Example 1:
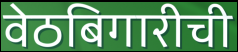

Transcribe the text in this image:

वेठबिगारीची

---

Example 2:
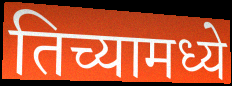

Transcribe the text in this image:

तिच्यामध्ये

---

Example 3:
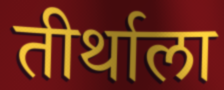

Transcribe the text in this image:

तीर्थाला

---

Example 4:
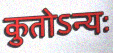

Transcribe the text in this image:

कुतोऽन्यः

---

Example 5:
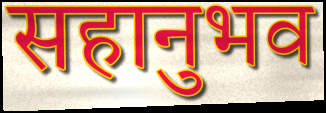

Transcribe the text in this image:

सहानुभव